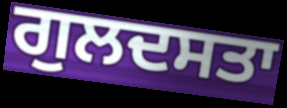
ਗੁਲਦਸਤਾ